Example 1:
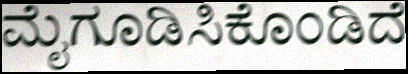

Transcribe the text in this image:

ಮೈಗೂಡಿಸಿಕೊಂಡಿದೆ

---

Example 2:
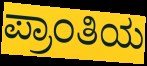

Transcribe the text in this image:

ಪ್ರಾಂತಿಯ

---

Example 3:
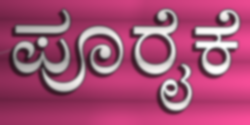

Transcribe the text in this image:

ಪೂರೈಕೆ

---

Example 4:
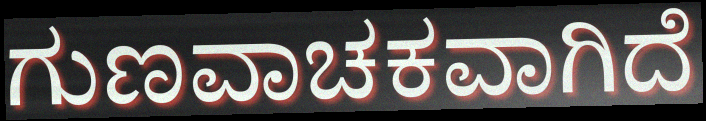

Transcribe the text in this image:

ಗುಣವಾಚಕವಾಗಿದೆ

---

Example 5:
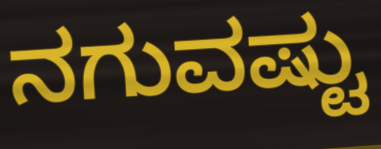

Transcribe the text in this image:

ನಗುವಷ್ಟು